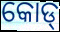
କୋଡ୍